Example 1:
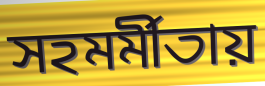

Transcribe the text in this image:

সহমর্মীতায়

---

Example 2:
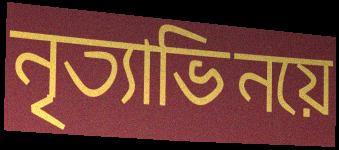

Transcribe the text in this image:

নৃত্যাভিনয়ে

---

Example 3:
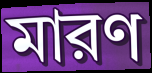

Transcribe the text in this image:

মারণ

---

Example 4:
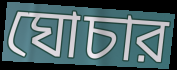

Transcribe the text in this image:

ঘোচার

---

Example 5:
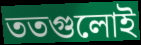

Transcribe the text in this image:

ততগুলোই